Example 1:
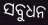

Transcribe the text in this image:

ସବୁଧନ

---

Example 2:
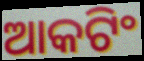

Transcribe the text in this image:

ଆକଟିଂ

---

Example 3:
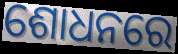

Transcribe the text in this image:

ଶୋଧନରେ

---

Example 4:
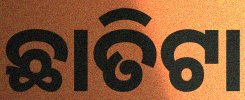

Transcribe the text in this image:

ଛାତିଟା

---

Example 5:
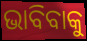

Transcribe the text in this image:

ଭାବିବାକୁ